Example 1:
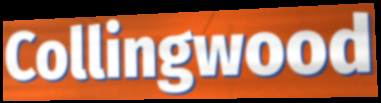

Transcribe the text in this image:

Collingwood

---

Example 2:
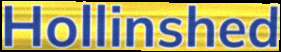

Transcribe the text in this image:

Hollinshed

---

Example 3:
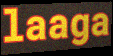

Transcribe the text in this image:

laaga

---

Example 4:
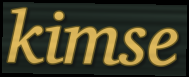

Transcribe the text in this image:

kimse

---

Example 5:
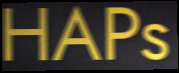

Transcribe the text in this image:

HAPs